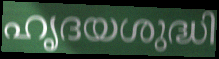
ഹൃദയശുദ്ധി